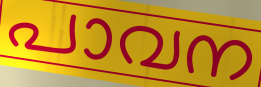
പാവന